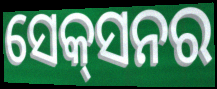
ସେକ୍‍ସନର